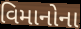
વિમાનોના